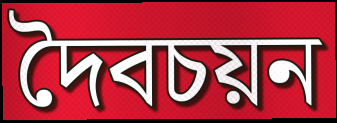
দৈবচয়ন